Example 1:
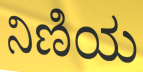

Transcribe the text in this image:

ನಿಣಿಯ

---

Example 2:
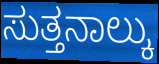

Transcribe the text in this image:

ಸುತ್ತನಾಲ್ಕು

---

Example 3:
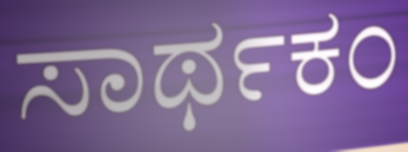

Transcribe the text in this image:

ಸಾರ್ಥಕಂ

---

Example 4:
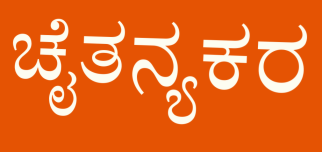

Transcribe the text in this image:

ಚೈತನ್ಯಕರ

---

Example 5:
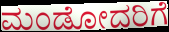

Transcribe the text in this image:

ಮಂಡೋದರಿಗೆ